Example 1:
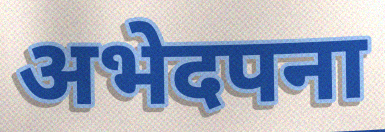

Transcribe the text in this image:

अभेदपना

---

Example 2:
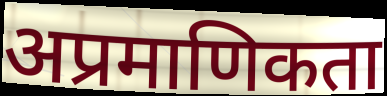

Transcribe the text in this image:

अप्रमाणिकता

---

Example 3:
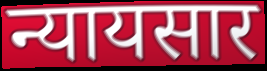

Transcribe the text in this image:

न्यायसार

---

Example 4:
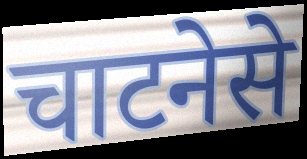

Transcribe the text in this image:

चाटनेसे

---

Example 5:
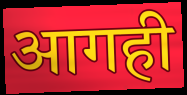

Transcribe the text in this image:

आगही